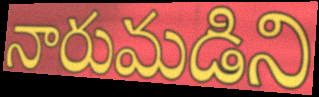
నారుమడిని